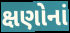
ક્ષણોનાં